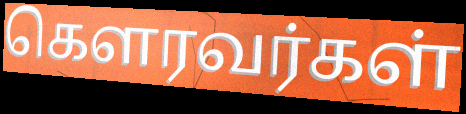
கௌரவர்கள்